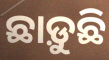
ଛାଡ଼ୁଛି